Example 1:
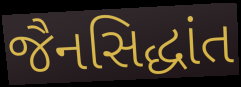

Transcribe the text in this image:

જૈનસિદ્ધાંત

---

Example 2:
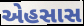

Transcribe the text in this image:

એહસાસ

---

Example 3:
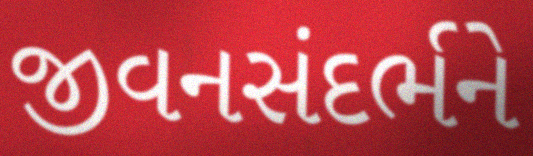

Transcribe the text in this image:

જીવનસંદર્ભને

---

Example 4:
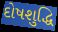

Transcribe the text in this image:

દોષશુદ્ધિ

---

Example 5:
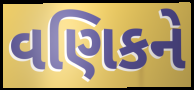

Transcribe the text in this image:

વણિકને